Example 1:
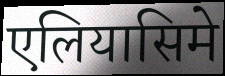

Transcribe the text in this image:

एलियासिमे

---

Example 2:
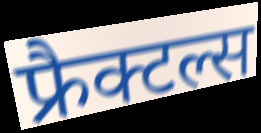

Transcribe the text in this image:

फ्रैक्टल्स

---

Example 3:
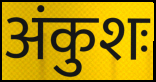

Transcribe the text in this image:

अंकुशः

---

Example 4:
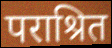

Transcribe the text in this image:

पराश्रित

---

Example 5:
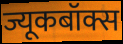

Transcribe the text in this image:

ज्यूकबॉक्स